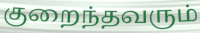
குறைந்தவரும்